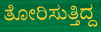
ತೋರಿಸುತ್ತಿದ್ದ